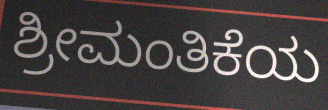
ಶ್ರೀಮಂತಿಕೆಯ